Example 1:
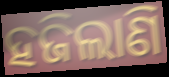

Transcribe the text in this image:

ହଜିଲାଣି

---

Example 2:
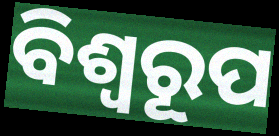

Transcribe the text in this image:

ବିଶ୍ଵରୂପ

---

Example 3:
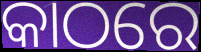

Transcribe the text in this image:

କାଠରେ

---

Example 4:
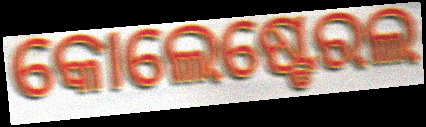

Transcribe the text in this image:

କୋଲେଷ୍ଟେରଲ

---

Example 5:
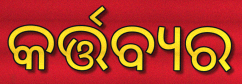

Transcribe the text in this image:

କର୍ତ୍ତବ୍ୟର